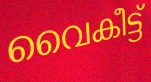
വൈകീട്ട്